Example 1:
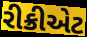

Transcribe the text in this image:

રીક્રીએટ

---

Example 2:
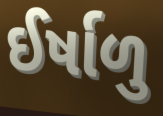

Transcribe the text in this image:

ઈર્ષાળુ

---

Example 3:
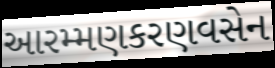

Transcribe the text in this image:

આરમ્મણકરણવસેન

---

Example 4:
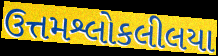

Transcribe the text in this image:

ઉત્તમશ્લોકલીલયા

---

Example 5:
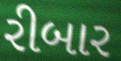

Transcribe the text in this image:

રીબાર